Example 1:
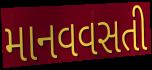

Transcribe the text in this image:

માનવવસતી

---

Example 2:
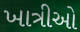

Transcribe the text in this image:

ખાત્રીઓ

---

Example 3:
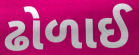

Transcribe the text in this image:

ઢોળાઈ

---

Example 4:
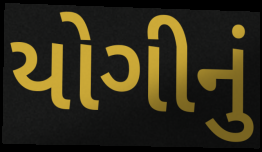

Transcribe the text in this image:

યોગીનું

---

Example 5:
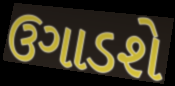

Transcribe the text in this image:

ઉગાડશે